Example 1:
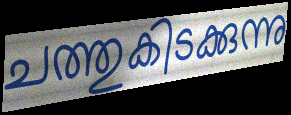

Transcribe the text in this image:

ചത്തുകിടക്കുന്നു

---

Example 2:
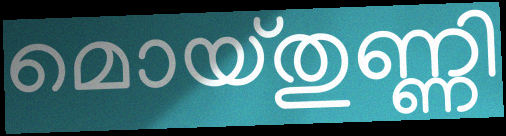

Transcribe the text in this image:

മൊയ്തുണ്ണി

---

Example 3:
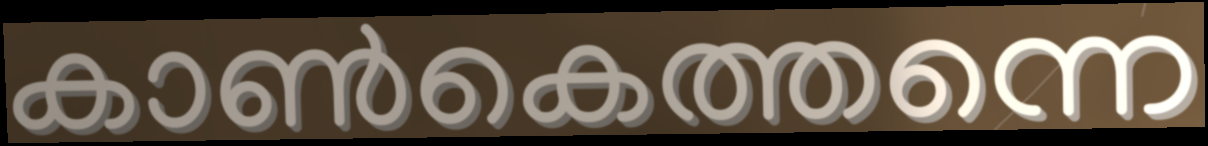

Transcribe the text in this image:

കാൺകെത്തന്നെ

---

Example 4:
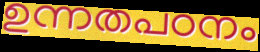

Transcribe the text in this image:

ഉന്നതപഠനം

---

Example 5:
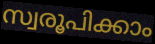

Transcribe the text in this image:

സ്വരൂപിക്കാം